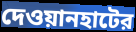
দেওয়ানহাটের